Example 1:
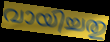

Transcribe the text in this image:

വായിച്ചതു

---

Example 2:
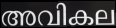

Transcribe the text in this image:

അവികല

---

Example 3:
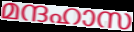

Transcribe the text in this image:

മന്ദഹാസ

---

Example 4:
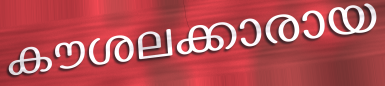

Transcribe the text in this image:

കൗശലക്കാരായ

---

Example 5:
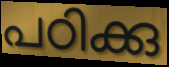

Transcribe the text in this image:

പഠിക്കു